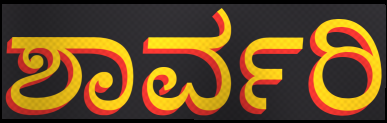
ಶಾರ್ವರಿ